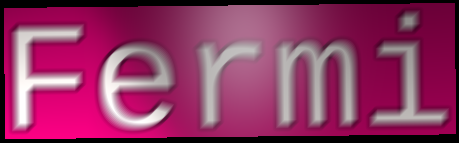
Fermi